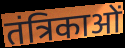
तंत्रिकाओं